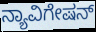
ನ್ಯಾವಿಗೇಷನ್